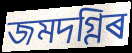
জমদগ্নিৰ